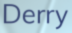
Derry